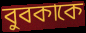
বুবকাকে